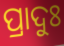
ପ୍ରାଦୁଃ